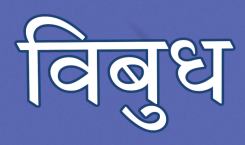
विबुध